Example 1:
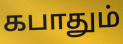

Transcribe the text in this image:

கபாதும்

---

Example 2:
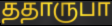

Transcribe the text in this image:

ததாருபா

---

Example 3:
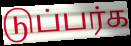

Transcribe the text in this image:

டுப்பர்க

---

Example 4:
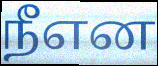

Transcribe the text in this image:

நீஎன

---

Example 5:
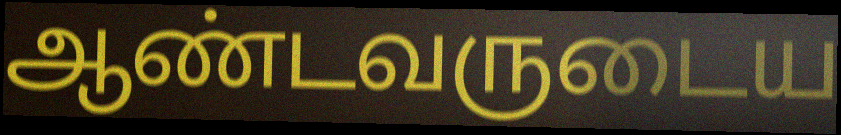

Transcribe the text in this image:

ஆண்டவருடைய